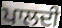
ਪਾਲਦੀ